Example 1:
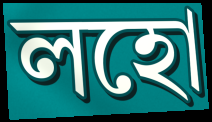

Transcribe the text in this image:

লহো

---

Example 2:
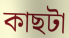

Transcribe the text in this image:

কাছটা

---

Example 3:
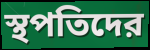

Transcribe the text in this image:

স্থপতিদের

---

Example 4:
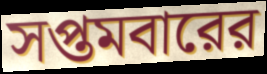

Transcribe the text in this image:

সপ্তমবারের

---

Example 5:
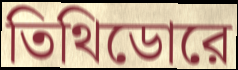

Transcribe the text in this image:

তিথিডোরে